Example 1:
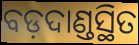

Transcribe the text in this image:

ବଡ଼ଦାଣ୍ଡସ୍ଥିତ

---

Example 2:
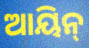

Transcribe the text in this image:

ଆୟିନ୍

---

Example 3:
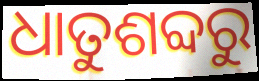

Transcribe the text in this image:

ଧାତୁଶବ୍ଦରୁ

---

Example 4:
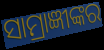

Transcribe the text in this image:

ସାମ୍ରାଜ୍ଞୀଙ୍କର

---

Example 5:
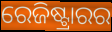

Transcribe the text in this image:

ରେଜିଷ୍ଟ୍ରାରର